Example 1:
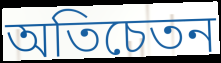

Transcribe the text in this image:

অতিচেতন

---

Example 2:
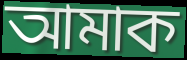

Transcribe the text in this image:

আমাক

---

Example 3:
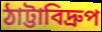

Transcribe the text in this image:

ঠাট্টাবিদ্রুপ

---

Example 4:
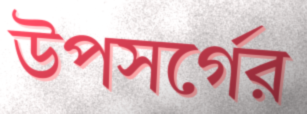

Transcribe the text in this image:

উপসর্গের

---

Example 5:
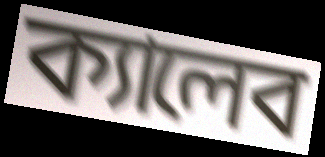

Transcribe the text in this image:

ক্যালেব